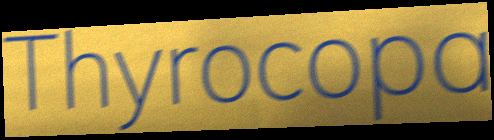
Thyrocopa